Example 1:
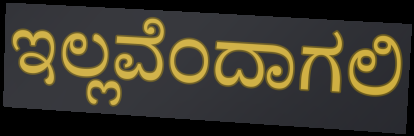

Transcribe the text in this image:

ಇಲ್ಲವೆಂದಾಗಲಿ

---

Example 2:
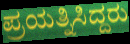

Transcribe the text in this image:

ಪ್ರಯತ್ನಿಸಿದ್ದರು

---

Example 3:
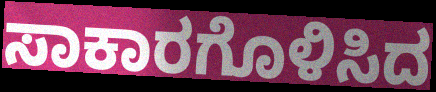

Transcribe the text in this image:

ಸಾಕಾರಗೊಳಿಸಿದ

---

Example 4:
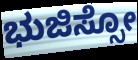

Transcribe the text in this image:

ಭುಜಿಸ್ಸೋ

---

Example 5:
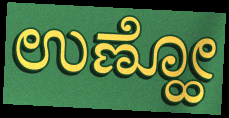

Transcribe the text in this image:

ಉಣ್ಹೋ